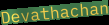
Devathachan